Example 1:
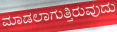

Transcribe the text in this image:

ಮಾಡಲಾಗುತ್ತಿರುವುದು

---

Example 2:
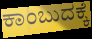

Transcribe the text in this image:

ಕಾಂಬುದಕ್ಕೆ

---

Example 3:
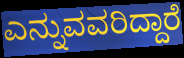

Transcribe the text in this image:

ಎನ್ನುವವರಿದ್ದಾರೆ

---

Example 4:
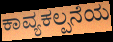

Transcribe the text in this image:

ಕಾವ್ಯಕಲ್ಪನೆಯ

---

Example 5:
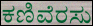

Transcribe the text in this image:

ಕಣಿವೆರಸು